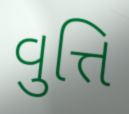
વુત્તિ